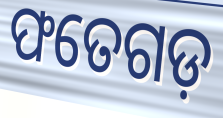
ଫତେଗଡ଼